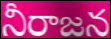
నీరాజన